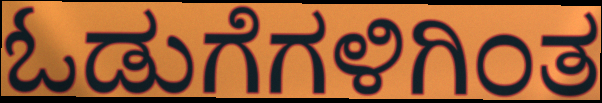
ಓಡುಗೆಗಳಿಗಿಂತ